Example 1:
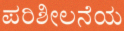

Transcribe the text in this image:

ಪರಿಶೀಲನೆಯ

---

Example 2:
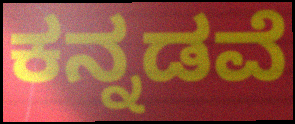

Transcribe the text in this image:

ಕನ್ನಡವೆ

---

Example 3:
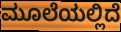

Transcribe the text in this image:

ಮೂಲೆಯಲ್ಲಿದೆ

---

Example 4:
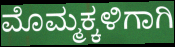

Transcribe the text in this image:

ಮೊಮ್ಮಕ್ಕಳಿಗಾಗಿ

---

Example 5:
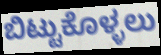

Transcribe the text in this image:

ಬಿಟ್ಟುಕೊಳ್ಳಲು